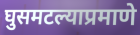
घुसमटल्याप्रमाणे